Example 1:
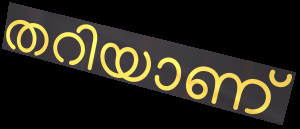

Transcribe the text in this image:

തറിയാണ്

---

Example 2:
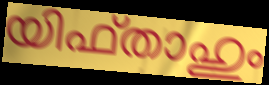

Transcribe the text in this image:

യിഫ്താഹും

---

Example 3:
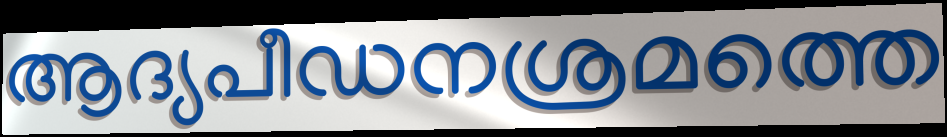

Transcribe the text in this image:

ആദ്യപീഡനശ്രമത്തെ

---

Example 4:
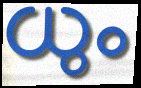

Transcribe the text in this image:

ധും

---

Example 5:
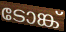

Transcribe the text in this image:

ടോങ്ക്